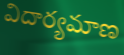
విదార్యమాణ